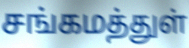
சங்கமத்துள்